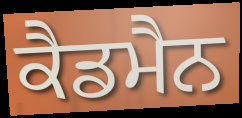
ਕੈਡਮੈਨ